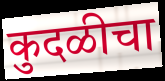
कुदळीचा